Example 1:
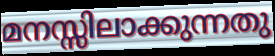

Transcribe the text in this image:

മനസ്സിലാക്കുന്നതു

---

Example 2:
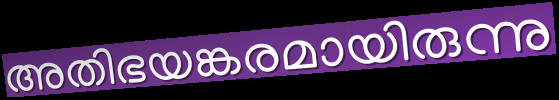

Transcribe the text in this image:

അതിഭയങ്കരമായിരുന്നു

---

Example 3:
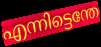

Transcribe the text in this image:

എന്നിട്ടെന്തേ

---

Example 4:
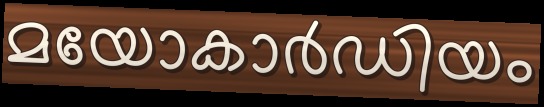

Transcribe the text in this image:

മയോകാർഡിയം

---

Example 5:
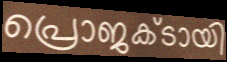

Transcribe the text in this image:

പ്രൊജക്ടായി